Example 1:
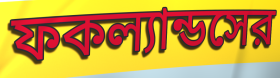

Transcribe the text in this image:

ফকল্যান্ডসের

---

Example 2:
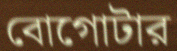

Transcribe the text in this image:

বোগোটার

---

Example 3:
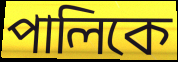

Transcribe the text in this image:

পালিকে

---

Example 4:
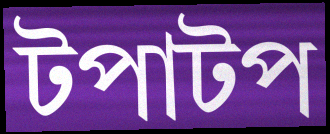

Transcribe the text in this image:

টপাটপ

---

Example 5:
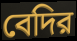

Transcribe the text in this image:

বেদির